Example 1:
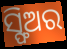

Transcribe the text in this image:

ସ୍ଫିଅର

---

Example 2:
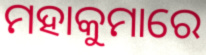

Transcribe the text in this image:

ମହାକୁମାରେ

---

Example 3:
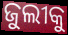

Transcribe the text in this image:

ଜୁଲୀକୁ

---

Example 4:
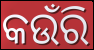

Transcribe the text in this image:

କଉଁରି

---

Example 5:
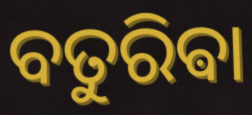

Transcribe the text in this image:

ବତୁରିଵା